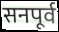
सनपूर्व